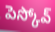
పెస్కోవ్